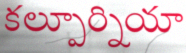
కల్పూర్నియా